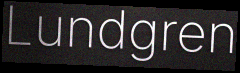
Lundgren